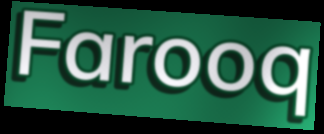
Farooq